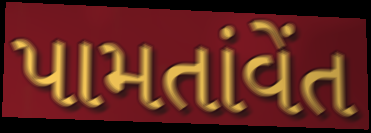
પામતાંવેંત